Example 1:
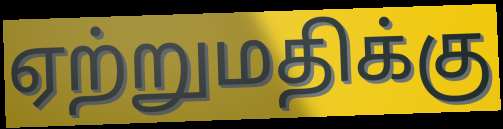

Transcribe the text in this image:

ஏற்றுமதிக்கு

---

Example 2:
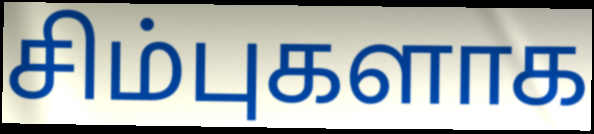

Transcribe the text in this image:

சிம்புகளாக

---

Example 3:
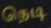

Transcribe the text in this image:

நெடி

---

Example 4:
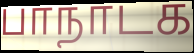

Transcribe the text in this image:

பாநாடக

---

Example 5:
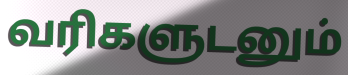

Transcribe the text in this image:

வரிகளுடனும்